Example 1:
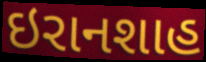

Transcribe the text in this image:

ઇરાનશાહ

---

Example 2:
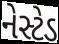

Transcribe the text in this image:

નેસ્ટેડ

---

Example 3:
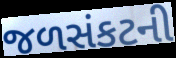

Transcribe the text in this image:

જળસંકટની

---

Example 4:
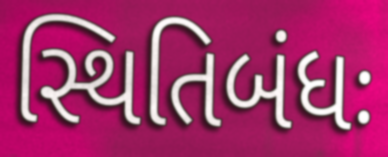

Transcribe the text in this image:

સ્થિતિબંધઃ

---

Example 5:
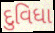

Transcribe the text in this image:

દુવિધા